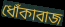
ধোঁকাবাজ